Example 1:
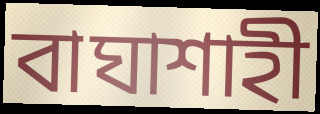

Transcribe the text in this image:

বাঘাশাহী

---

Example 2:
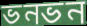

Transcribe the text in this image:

ভনভন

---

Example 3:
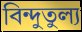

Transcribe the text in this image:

বিন্দুতুল্য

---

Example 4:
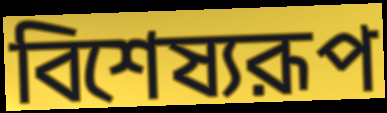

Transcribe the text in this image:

বিশেষ্যরূপ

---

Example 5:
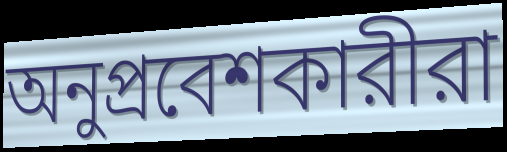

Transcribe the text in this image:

অনুপ্রবেশকারীরা